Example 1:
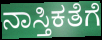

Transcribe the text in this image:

ನಾಸ್ತಿಕತೆಗೆ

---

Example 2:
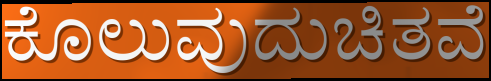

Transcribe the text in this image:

ಕೊಲುವುದುಚಿತವೆ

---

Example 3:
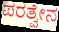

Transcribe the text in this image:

ಪರತ್ವೇನ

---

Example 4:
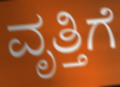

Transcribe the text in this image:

ವೃತ್ತಿಗೆ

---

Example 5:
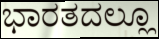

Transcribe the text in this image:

ಭಾರತದಲ್ಲೂ